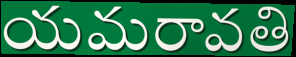
యమరావతి